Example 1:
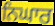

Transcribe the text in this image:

ਨਿਘਾਰ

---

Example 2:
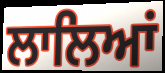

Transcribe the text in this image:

ਲਾਲਿਆਂ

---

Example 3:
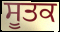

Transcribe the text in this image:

ਸੂਤਕ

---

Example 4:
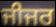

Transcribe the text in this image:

ਜੀਜਰ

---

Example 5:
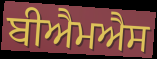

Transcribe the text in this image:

ਬੀਐਮਐਸ